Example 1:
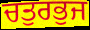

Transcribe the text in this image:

ਚਤੁਰਭੁਜ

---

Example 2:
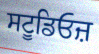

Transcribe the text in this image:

ਸਟੂਡਿਓਜ਼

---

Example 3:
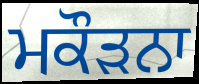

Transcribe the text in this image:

ਮਕੌੜਨਾ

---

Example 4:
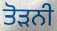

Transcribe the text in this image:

ਤੋੜਨੀ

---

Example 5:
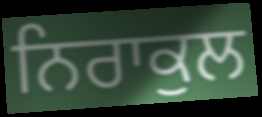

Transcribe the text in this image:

ਨਿਰਾਕੁਲ